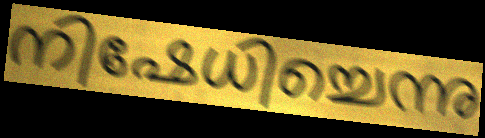
നിഷേധിച്ചെന്നു